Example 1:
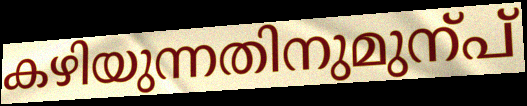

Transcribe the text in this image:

കഴിയുന്നതിനുമുന്പ്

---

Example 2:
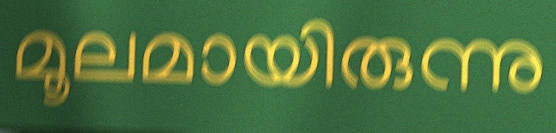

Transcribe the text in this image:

മൂലമായിരുന്നു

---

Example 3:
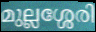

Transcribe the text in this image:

മുല്ലശ്ശേരി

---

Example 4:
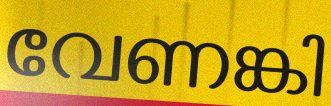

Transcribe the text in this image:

വേണങ്കി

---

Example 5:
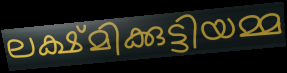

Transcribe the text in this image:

ലക്ഷ്മിക്കുട്ടിയമ്മ